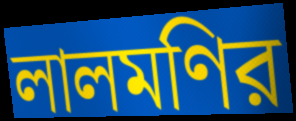
লালমণির